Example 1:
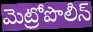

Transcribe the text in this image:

మెట్రోపొలీస్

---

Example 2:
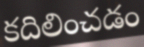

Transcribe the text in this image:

కదిలించడం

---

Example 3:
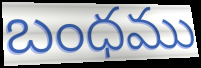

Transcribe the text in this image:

బంధము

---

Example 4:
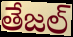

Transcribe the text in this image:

తేజల్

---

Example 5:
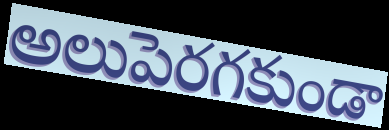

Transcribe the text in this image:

అలుపెరగకుండా